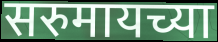
सरुमायच्या